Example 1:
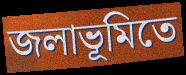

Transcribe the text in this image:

জলাভূমিতে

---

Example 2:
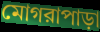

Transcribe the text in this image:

মোগরাপাড়া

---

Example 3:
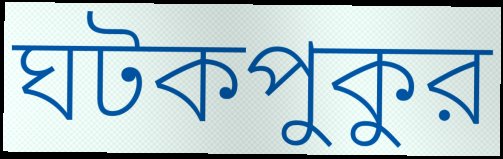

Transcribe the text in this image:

ঘটকপুকুর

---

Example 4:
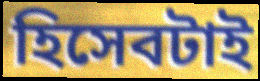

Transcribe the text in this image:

হিসেবটাই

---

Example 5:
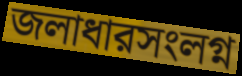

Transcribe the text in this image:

জলাধারসংলগ্ন